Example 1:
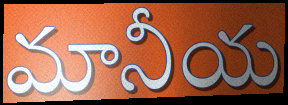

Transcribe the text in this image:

మానీయ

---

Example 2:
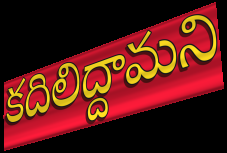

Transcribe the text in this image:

కదిలిద్దామని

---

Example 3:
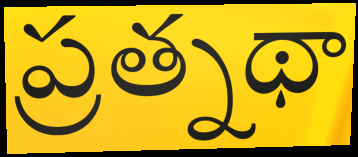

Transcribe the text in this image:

ప్రత్నథా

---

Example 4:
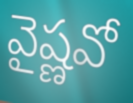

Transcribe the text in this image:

వైష్ణవో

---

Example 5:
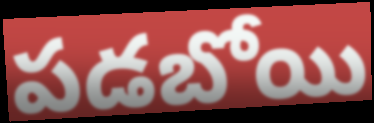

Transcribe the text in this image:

పడబోయి